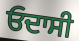
ਓਦਾਸੀ